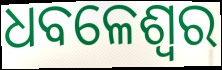
ଧବଳେଶ୍ଵର